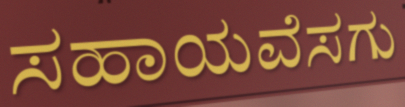
ಸಹಾಯವೆಸಗು